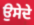
ਉਸੇਦੇ